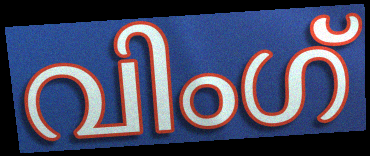
വിംഗ്